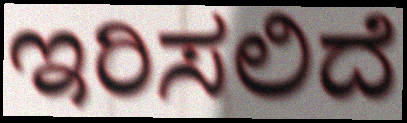
ಇರಿಸಲಿದೆ